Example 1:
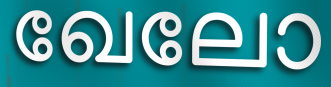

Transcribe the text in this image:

ഖേലോ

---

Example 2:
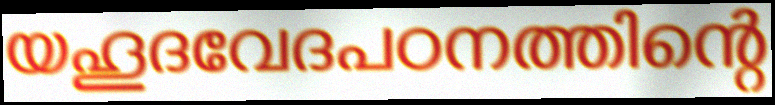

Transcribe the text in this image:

യഹൂദവേദപഠനത്തിന്റെ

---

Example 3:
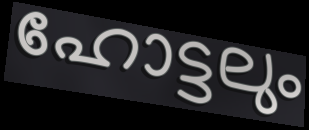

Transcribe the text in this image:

ഹോട്ടലും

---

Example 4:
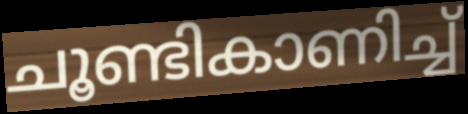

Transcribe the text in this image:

ചൂണ്ടികാണിച്ച്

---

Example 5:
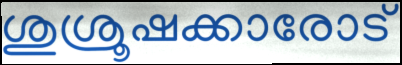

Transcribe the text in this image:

ശുശ്രൂഷക്കാരോട്